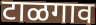
टाळगाव